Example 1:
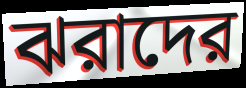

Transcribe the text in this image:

ঝরাদের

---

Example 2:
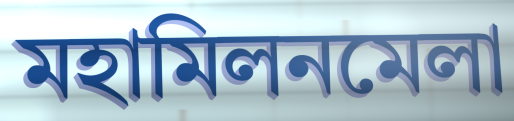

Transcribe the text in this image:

মহামিলনমেলা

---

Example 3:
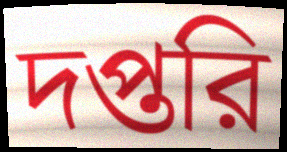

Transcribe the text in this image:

দপ্তরি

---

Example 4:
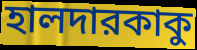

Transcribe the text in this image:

হালদারকাকু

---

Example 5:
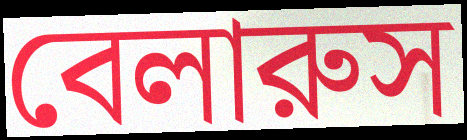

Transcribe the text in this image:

বেলারুস